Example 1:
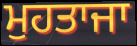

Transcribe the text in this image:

ਮੁਹਤਾਜਾ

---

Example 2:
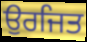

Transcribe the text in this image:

ਉਰਜਿਤ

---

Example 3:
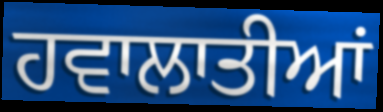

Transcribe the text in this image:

ਹਵਾਲਾਤੀਆਂ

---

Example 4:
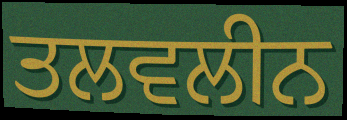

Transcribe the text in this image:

ਤਲਵਲੀਨ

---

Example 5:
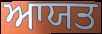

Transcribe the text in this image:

ਆਯਤ